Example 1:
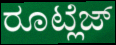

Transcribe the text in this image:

ರೂಟ್ಲೆಜ್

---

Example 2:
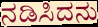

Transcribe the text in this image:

ನಡಿಸಿದನು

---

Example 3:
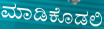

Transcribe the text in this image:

ಮಾಡಿಕೊಡಲಿ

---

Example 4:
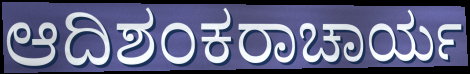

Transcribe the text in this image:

ಆದಿಶಂಕರಾಚಾರ್ಯ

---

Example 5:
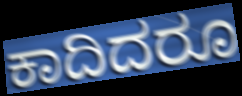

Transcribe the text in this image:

ಕಾದಿದರೂ